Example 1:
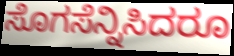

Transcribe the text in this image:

ಸೊಗಸೆನ್ನಿಸಿದರೂ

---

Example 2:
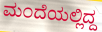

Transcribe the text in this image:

ಮಂದೆಯಲ್ಲಿದ್ದ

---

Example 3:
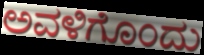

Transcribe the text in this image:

ಅವಳಿಗೊಂದು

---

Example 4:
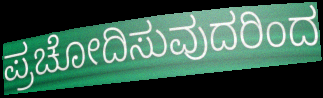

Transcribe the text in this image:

ಪ್ರಚೋದಿಸುವುದರಿಂದ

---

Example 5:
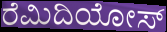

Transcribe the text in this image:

ರೆಮಿದಿಯೋಸ್